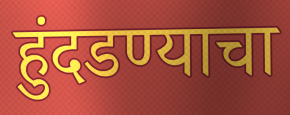
हुंदडण्याचा